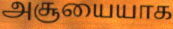
அசூயையாக